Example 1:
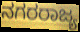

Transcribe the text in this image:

ನಗರರಾಜ್ಯ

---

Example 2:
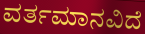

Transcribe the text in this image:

ವರ್ತಮಾನವಿದೆ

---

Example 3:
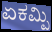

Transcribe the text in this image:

ಏಕಮ್ಪಿ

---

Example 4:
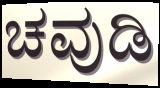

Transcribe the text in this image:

ಚವುಡಿ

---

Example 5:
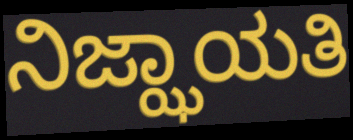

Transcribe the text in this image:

ನಿಜ್ಝಾಯತಿ